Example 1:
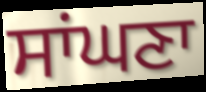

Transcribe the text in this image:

ਸਾਂਘਣਾ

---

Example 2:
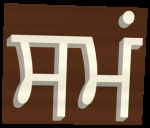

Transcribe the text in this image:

ਸਮਂ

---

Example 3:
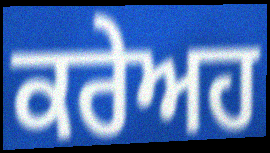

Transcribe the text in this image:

ਕਰੇਅਹ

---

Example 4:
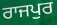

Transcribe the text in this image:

ਰਾਜਪੁਰ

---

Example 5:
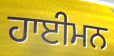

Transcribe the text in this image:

ਹਾਈਮਨ